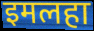
इमलहा